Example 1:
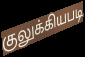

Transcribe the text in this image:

குலுக்கியபடி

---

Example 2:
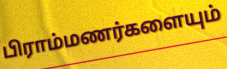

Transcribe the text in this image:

பிராம்மணர்களையும்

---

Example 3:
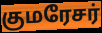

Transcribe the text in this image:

குமரேசர்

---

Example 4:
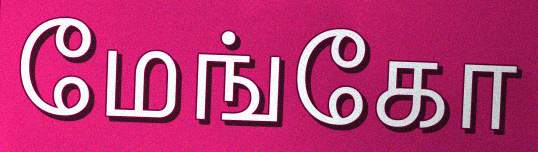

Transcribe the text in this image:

மேங்கோ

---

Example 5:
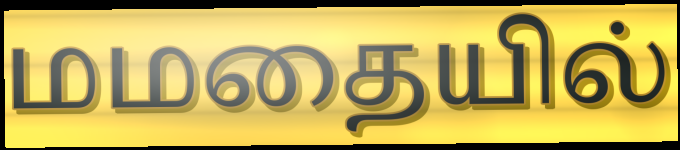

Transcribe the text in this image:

மமதையில்